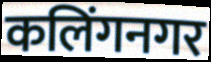
कलिंगनगर